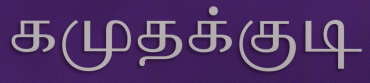
கமுதக்குடி